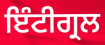
ਇੰਟੀਗ੍ਰਲ